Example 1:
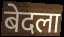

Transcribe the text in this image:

बेदला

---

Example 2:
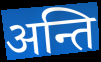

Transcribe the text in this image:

अन्ति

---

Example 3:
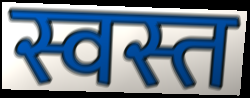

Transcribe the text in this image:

स्वस्त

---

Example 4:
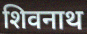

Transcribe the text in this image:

शिवनाथ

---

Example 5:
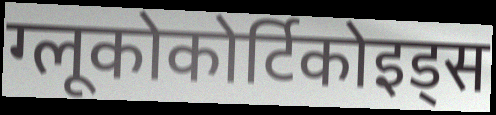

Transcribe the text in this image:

ग्लूकोकोर्टिकोइड्स